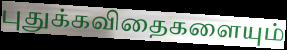
புதுக்கவிதைகளையும்